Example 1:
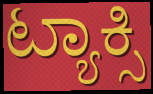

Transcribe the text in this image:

ಟ್ಯಾಕ್ಸಿ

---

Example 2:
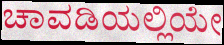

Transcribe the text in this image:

ಚಾವಡಿಯಲ್ಲಿಯೇ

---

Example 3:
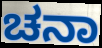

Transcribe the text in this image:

ಚನಾ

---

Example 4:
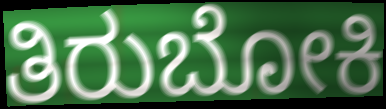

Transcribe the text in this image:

ತಿರುಬೋಕಿ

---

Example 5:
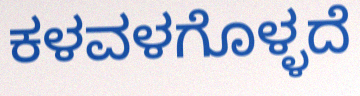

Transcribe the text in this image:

ಕಳವಳಗೊಳ್ಳದೆ